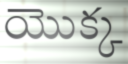
యొక్క